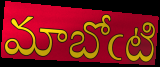
మాబోఁటి